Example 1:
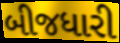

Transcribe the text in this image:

બીજધારી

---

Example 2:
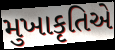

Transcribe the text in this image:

મુખાકૃતિએ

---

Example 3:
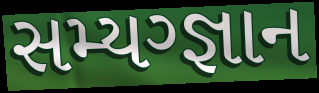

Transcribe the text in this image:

સમ્યગ્જ્ઞાન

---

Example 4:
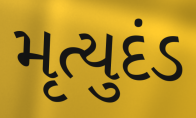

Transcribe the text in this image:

મૃત્યુદંડ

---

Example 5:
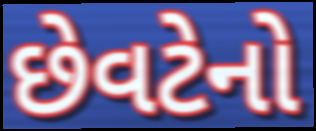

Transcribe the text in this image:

છેવટેનો